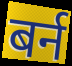
बर्न